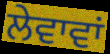
ਲੇਵਾਵਾਂ